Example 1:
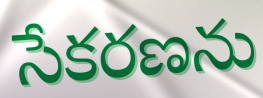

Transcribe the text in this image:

సేకరణను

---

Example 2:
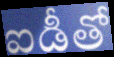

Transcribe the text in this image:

ఐడీతో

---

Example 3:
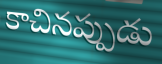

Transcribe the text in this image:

కాచినప్పుడు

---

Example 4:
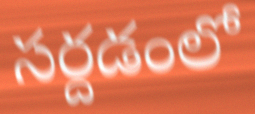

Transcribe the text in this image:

సర్దడంలో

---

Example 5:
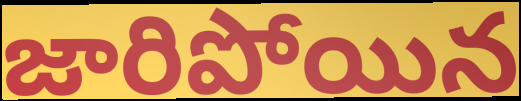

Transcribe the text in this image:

జారిపోయిన